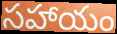
సహాయం